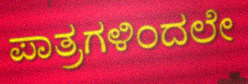
ಪಾತ್ರಗಳಿಂದಲೇ